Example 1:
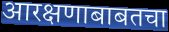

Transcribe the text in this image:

आरक्षणाबाबतचा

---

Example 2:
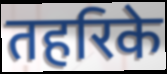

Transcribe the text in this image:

तहरिके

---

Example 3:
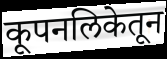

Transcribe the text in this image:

कूपनलिकेतून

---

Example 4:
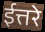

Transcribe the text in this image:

ईत्तरे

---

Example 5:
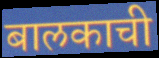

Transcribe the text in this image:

बालकाची